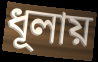
ধূলায়